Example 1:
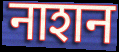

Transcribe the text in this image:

नाशन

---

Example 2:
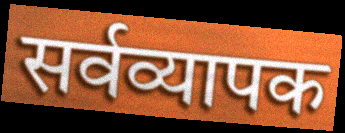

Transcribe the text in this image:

सर्वव्यापक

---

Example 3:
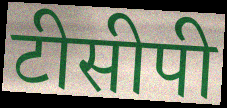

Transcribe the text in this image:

टीसीपी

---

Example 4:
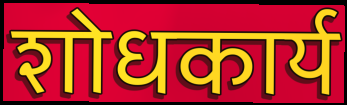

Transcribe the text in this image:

शोधकार्य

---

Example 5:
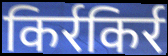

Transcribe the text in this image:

किर्रकिर्र